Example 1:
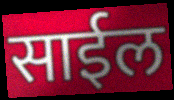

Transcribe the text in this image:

साईल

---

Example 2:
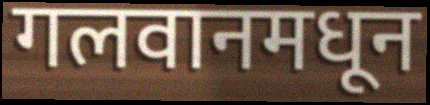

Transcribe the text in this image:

गलवानमधून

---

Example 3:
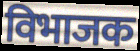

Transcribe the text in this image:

विभाजक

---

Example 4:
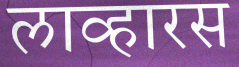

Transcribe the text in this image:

लाव्हारस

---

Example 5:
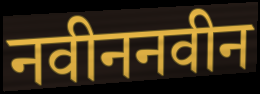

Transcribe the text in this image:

नवीननवीन